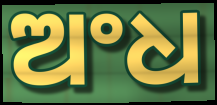
ଅଂଧ